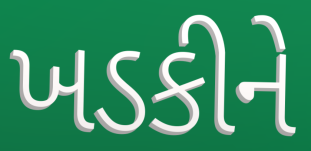
ખડકીને